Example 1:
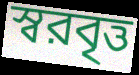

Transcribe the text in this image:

স্বরবৃত্ত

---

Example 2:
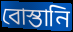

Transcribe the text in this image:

বোস্তানি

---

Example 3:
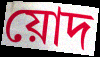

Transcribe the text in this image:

য়োদ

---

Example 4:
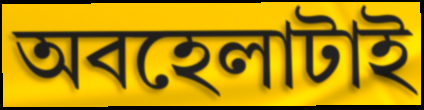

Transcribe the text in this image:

অবহেলাটাই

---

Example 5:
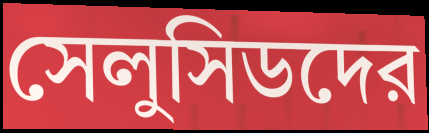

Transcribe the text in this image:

সেলুসিডদের